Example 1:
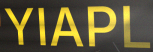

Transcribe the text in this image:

YIAPL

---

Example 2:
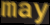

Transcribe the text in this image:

may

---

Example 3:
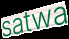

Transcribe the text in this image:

satwa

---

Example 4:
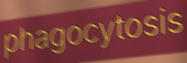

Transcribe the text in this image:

phagocytosis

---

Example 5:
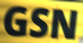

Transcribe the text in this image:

GSN